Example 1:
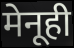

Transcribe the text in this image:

मेनूही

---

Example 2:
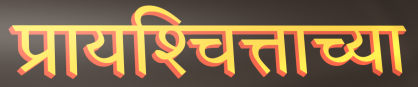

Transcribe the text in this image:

प्रायश्‍चित्ताच्या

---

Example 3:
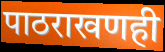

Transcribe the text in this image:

पाठराखणही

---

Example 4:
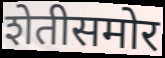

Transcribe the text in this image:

शेतीसमोर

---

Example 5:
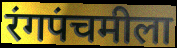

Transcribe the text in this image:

रंगपंचमीला